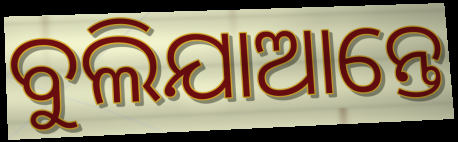
ବୁଲିଯାଆନ୍ତେ